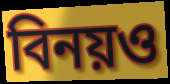
বিনয়ও